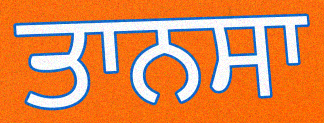
ਤਾਨਸਾ